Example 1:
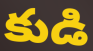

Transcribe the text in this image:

కుడి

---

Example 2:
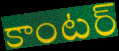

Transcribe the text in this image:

కాంటర్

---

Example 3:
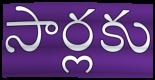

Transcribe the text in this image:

సార్లకు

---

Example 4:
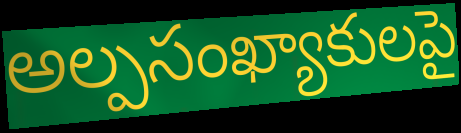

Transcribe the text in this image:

అల్పసంఖ్యాకులపై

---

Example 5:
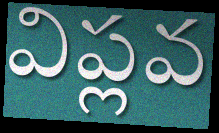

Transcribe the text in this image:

విప్లవ